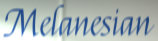
Melanesian